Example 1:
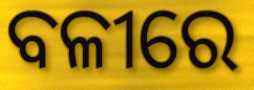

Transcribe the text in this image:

ବଳୀରେ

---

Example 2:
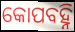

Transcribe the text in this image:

କୋପବହ୍ନି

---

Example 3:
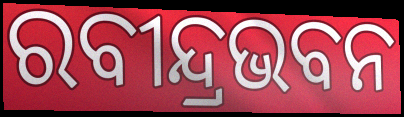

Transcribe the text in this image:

ରବୀନ୍ଦ୍ରଭବନ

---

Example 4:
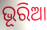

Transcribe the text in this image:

ଭୂରିଆ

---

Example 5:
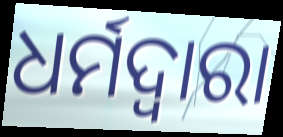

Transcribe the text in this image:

ଧର୍ମଦ୍ୱାରା